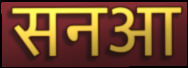
सनआ